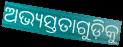
ଅଭ୍ୟସ୍ତତାଗୁଡ଼ିକୁ